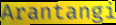
Arantangi